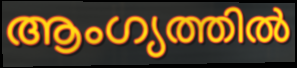
ആംഗ്യത്തിൽ